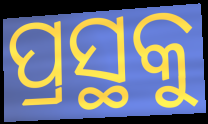
ପ୍ରସ୍ଥକୁ